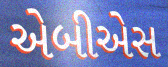
એબીએસ